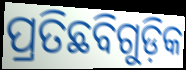
ପ୍ରତିଛବିଗୁଡ଼ିକ